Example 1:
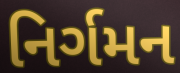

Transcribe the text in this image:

નિર્ગમન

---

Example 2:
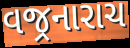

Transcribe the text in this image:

વજ્રનારાચ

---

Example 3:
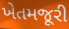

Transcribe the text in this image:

ખેતમજૂરી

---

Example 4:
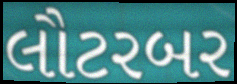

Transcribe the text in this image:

લૌટરબર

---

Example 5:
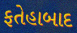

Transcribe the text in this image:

ફતેહાબાદ